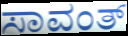
ಸಾವಂತ್